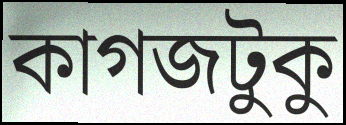
কাগজটুকু